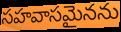
సహవాసమైనను